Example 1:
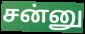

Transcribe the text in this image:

சன்னு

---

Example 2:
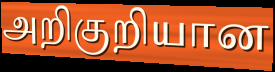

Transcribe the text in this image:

அறிகுறியான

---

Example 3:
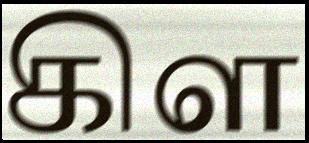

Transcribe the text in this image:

கிள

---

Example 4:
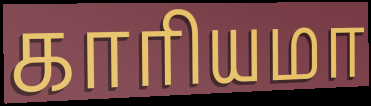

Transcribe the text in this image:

காரியமா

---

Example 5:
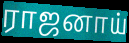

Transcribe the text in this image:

ராஜனாய்